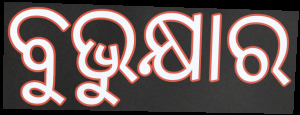
ବୁଭୁକ୍ଷାର